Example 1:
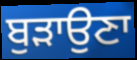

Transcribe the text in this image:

ਬੁੜਾਉਣਾ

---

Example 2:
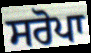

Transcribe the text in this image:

ਸਰੋਪਾ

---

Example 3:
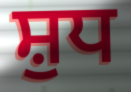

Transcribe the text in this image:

ਸ਼ੁਧ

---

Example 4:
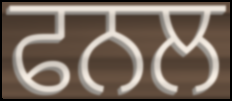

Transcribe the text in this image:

ਫਨਲ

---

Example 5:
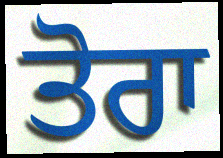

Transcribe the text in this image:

ਤੋਰਾ